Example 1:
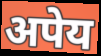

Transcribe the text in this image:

अपेय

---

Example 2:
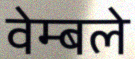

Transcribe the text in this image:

वेम्बले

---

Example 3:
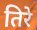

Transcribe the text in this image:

तिरे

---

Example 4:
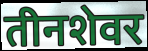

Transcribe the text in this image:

तीनशेवर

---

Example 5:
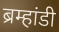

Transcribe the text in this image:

ब्रम्हांडी